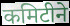
कमिटीने